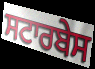
ਸਟਾਰਬੇਸ